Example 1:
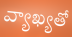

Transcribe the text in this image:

వ్యాఖ్యతో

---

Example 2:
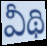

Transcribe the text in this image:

వీథి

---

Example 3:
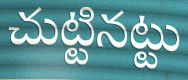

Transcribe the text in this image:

చుట్టినట్టు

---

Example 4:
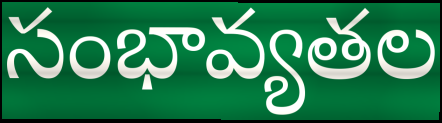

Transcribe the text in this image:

సంభావ్యతల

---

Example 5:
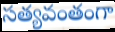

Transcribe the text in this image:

సత్యవంతంగా